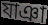
যাঞা